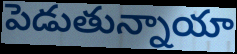
పెడుతున్నాయా